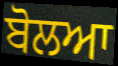
ਬੋਲਆ